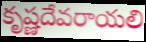
కృష్ణదేవరాయలి